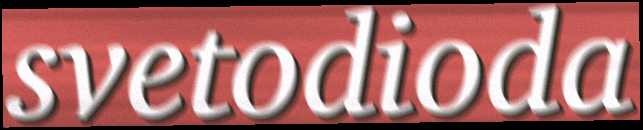
svetodioda